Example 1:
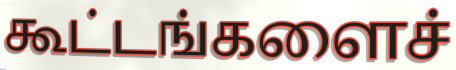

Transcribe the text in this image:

கூட்டங்களைச்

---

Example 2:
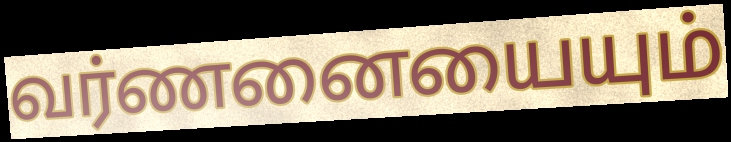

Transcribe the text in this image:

வர்ணனையையும்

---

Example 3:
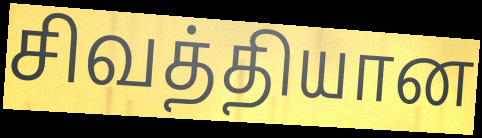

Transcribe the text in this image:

சிவத்தியான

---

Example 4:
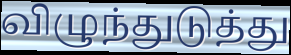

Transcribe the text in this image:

விழுந்துடுத்து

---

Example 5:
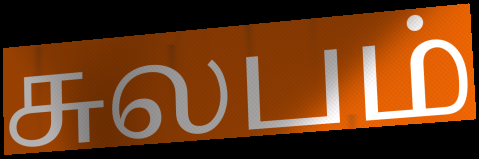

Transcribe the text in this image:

சுலபம்